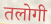
तलोगी